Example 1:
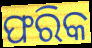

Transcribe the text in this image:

ଫରିକ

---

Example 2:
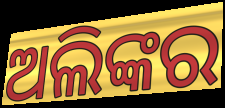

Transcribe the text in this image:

ଅଲିଙ୍କର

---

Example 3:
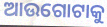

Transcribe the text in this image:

ଆଉଗୋଟାକୁ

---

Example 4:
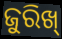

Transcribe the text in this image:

ଜୁରିଖ୍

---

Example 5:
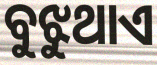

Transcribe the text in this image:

ବୁଝୁଥାଏ